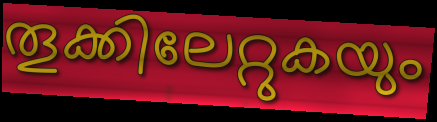
തൂക്കിലേറ്റുകയും